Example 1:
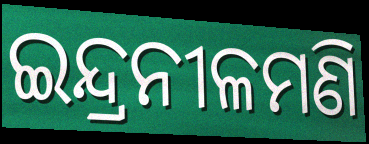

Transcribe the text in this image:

ଇନ୍ଦ୍ରନୀଳମଣି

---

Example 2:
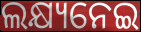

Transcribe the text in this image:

ଲକ୍ଷ୍ୟନେଇ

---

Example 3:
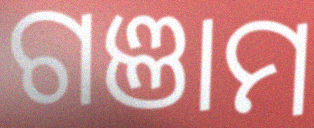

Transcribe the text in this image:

ଗଞାମ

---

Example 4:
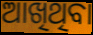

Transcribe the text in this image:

ଆଖିଥିବା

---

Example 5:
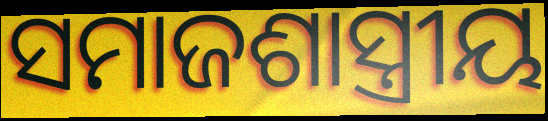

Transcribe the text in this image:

ସମାଜଶାସ୍ତ୍ରୀୟ